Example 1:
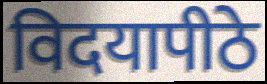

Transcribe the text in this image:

विदयापीठे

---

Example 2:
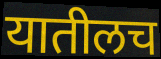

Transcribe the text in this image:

यातीलच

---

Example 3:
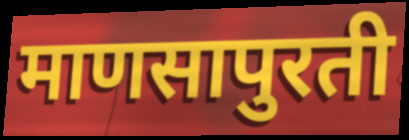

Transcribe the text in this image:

माणसापुरती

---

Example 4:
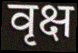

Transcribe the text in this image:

वृक्ष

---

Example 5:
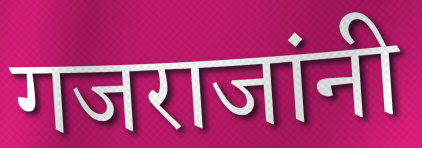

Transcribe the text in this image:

गजराजांनी